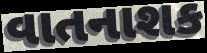
વાતનાશક